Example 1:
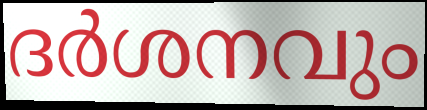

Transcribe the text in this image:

ദർശനവും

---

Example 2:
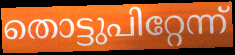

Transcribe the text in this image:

തൊട്ടുപിറ്റേന്ന്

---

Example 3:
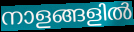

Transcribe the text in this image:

നാളങ്ങളിൽ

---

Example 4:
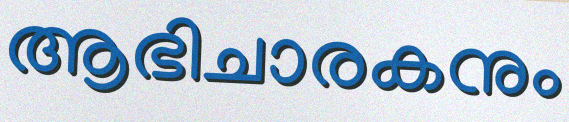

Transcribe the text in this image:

ആഭിചാരകനും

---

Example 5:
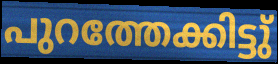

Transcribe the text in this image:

പുറത്തേക്കിട്ടു്